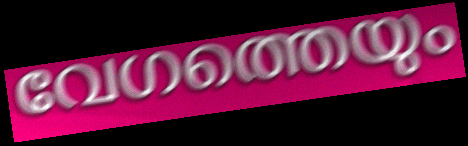
വേഗത്തെയും